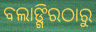
ବଲାଙ୍ଗିରଠାରୁ